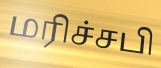
மரிச்சபி